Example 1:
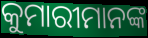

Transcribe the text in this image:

କୁମାରୀମାନଙ୍କ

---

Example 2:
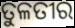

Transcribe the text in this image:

ତୁଳତୀର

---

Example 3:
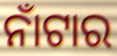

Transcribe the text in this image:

ନାଁଟାର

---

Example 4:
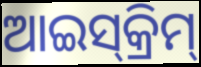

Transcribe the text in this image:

ଆଇସ୍‍କ୍ରିମ୍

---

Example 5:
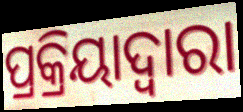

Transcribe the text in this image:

ପ୍ରକ୍ରିୟାଦ୍ଵାରା